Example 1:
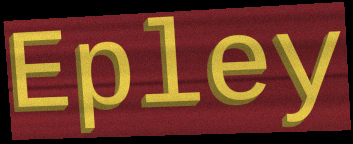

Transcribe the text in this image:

Epley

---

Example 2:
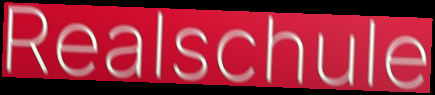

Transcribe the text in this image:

Realschule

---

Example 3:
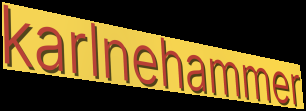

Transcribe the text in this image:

karlnehammer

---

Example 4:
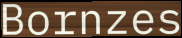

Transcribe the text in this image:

Bornzes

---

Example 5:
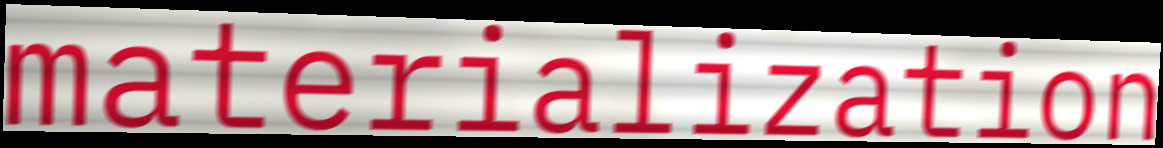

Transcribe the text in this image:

materialization